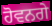
ਹੋਵਨਗੇ